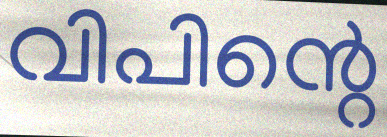
വിപിന്റെ